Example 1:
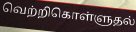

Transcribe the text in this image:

வெற்றிகொள்ளுதல்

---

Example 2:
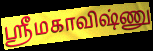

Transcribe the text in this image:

ஸ்ரீமகாவிஷ்ணு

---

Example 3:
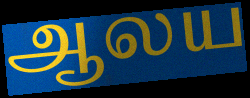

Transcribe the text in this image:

ஆலய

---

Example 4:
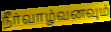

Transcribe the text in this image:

நீர்வாழ்வனவும்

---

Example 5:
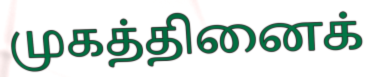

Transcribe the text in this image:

முகத்தினைக்